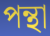
পন্থা